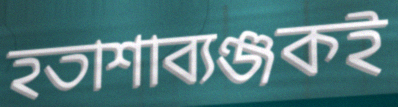
হতাশাব্যঞ্জকই